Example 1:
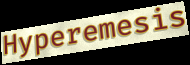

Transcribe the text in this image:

Hyperemesis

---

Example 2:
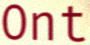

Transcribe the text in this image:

Ont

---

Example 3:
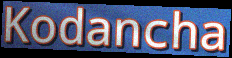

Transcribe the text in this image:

Kodancha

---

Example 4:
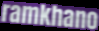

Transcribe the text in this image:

ramkhano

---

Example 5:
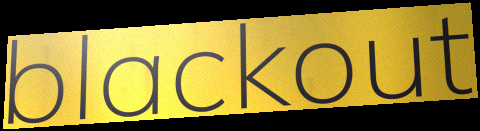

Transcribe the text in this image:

blackout